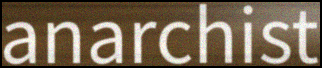
anarchist